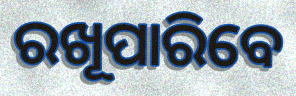
ରଖୂପାରିବେ